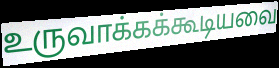
உருவாக்கக்கூடியவை